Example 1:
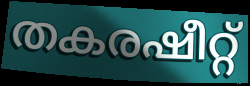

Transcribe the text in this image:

തകരഷീറ്റ്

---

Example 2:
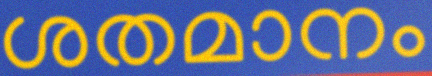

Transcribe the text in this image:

ശതമാനം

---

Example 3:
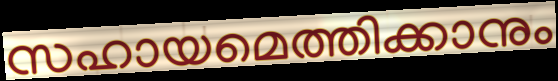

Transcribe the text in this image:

സഹായമെത്തിക്കാനും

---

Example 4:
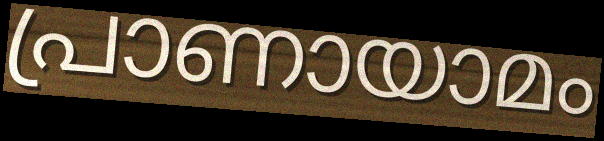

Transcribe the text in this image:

പ്രാണായാമം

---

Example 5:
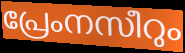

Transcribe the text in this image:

പ്രേംനസീറും